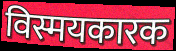
विस्मयकारक